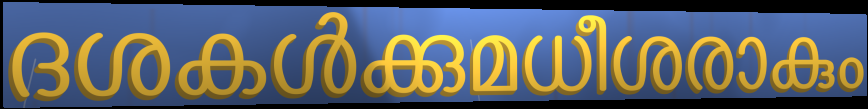
ദശകൾക്കുമധീശരാകും